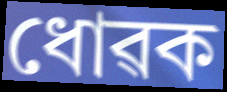
ধোৱক